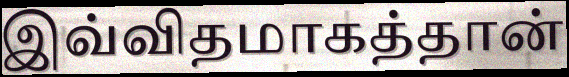
இவ்விதமாகத்தான்